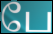
பே